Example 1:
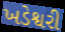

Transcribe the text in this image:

ખડેશ્વરી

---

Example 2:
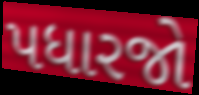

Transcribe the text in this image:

પધારજો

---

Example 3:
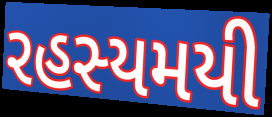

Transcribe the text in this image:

રહસ્યમયી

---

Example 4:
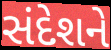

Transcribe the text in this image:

સંદેશને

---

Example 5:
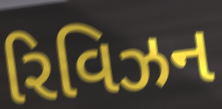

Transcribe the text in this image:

રિવિઝન